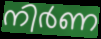
നിർണ